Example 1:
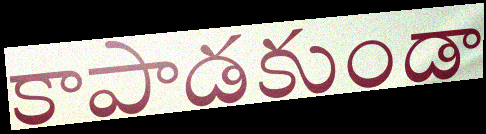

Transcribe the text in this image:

కాపాడకుండా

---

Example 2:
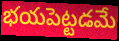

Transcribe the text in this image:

భయపెట్టడమే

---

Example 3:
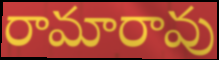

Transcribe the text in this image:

రామారావు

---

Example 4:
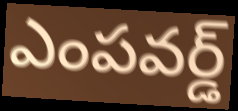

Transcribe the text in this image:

ఎంపవర్డ్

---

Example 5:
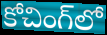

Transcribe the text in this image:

కోచింగ్‌లో